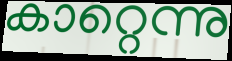
കാറ്റെന്നു